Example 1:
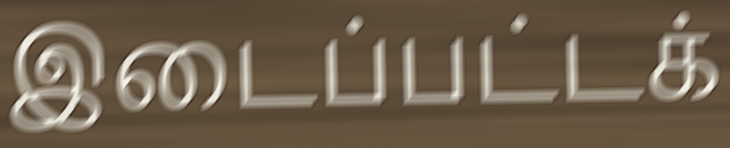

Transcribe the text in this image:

இடைப்பட்டக்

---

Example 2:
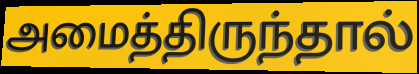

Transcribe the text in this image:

அமைத்திருந்தால்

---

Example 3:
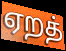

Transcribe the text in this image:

ஏறத்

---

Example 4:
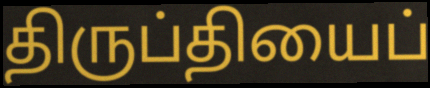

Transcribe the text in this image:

திருப்தியைப்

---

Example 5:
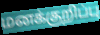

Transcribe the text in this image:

மனக்குறிப்பு